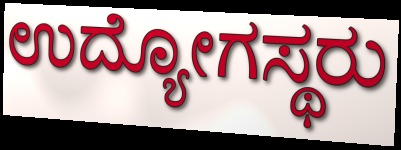
ಉದ್ಯೋಗಸ್ಥರು